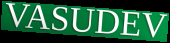
VASUDEV